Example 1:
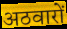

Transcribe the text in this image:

अठवारों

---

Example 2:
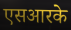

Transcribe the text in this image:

एसआरके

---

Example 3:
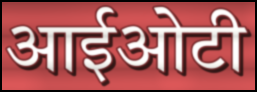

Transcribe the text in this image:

आईओटी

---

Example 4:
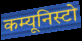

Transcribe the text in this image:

कम्यूनिस्टो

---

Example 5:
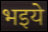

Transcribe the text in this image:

भइये